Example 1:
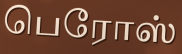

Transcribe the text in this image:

பெரோஸ்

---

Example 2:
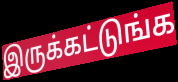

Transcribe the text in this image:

இருக்கட்டுங்க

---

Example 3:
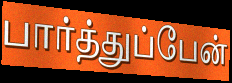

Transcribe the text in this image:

பார்த்துப்பேன்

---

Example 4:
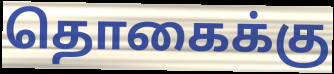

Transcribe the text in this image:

தொகைக்கு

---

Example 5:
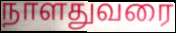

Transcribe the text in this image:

நாளதுவரை